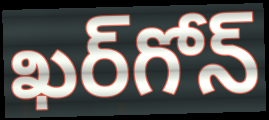
ఖర్‌గోన్